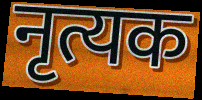
नृत्यक